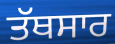
ਤੱਥਸਾਰ